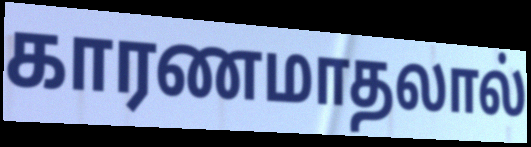
காரணமாதலால்